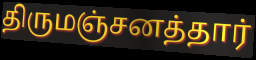
திருமஞ்சனத்தார்